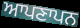
ਆਪਣਾਪਨ